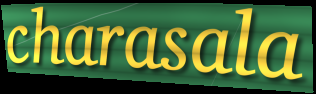
charasala